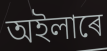
অইলাৰে